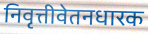
निवृत्तीवेतनधारक